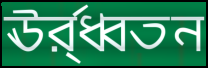
ঊর্র্ধ্বতন